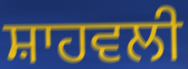
ਸ਼ਾਹਵਲੀ